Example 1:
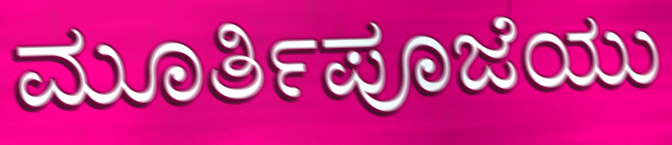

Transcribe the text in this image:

ಮೂರ್ತಿಪೂಜೆಯು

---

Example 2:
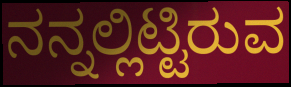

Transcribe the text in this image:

ನನ್ನಲ್ಲಿಟ್ಟಿರುವ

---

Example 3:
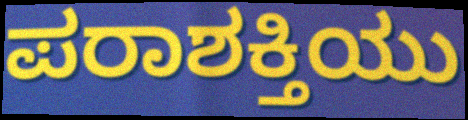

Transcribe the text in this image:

ಪರಾಶಕ್ತಿಯು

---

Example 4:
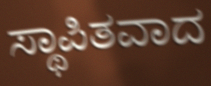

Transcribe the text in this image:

ಸ್ಥಾಪಿತವಾದ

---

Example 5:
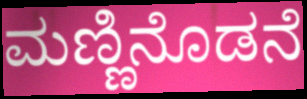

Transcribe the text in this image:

ಮಣ್ಣಿನೊಡನೆ